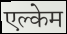
एल्केम